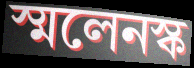
স্মলেনস্ক